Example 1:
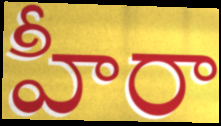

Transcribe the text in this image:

హీరా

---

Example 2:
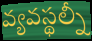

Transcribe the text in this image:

వ్యవస్థల్నీ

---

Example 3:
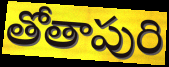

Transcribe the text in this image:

తోతాపురి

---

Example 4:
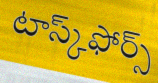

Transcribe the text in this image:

టాస్క్‌ఫోర్స్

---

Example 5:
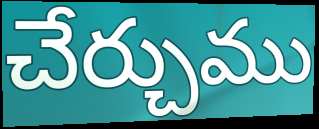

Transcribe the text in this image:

చేర్చుము